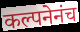
कल्पनेनंच